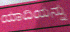
ಯಾದಿಯನ್ನು